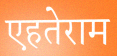
एहतेराम